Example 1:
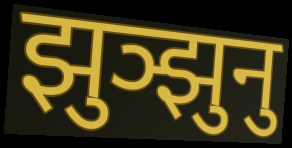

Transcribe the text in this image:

झुञ्झुनु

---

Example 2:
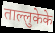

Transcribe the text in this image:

ताल्लुकेके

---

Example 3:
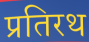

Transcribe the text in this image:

प्रतिरथ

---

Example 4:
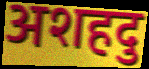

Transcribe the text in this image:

अशहदु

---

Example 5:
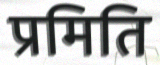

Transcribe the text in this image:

प्रमिति